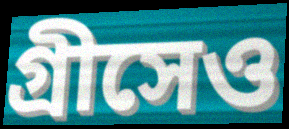
গ্রীসেও